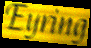
Eyring